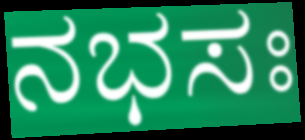
ನಭಸಃ